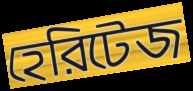
হেরিটেজ